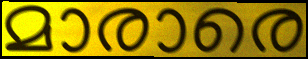
മാരാരെ